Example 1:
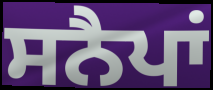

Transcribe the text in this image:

ਸਨੈਪਾਂ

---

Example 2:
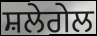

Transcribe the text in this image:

ਸ਼ਲੇਗੇਲ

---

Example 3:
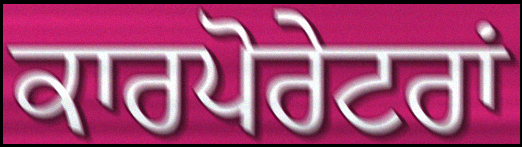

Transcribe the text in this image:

ਕਾਰਪੋਰੇਟਰਾਂ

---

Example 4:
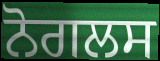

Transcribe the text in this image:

ਨੋਗਲਸ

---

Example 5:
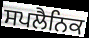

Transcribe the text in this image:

ਸਪਲੈਨਿਕ